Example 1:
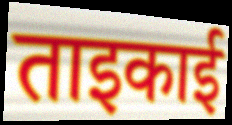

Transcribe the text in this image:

ताइकाई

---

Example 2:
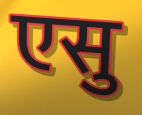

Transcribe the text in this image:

एसु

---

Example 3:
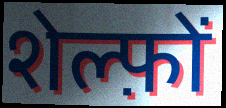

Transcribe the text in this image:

शेल्फ़ों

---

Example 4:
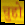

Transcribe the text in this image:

चुहो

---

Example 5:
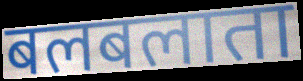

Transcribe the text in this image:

बलबलाता